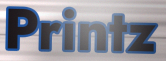
Printz